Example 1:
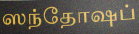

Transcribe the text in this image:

ஸந்தோஷப்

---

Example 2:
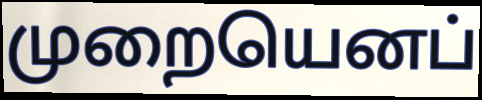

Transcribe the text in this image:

முறையெனப்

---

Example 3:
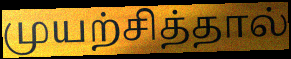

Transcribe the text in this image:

முயற்சித்தால்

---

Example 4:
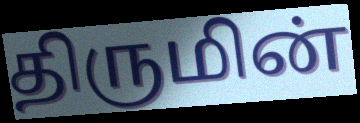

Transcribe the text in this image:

திருமின்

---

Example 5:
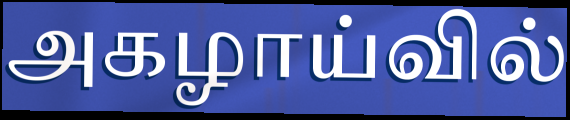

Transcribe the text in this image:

அகழாய்வில்